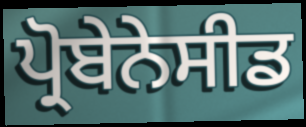
ਪ੍ਰੋਬੇਨੇਸੀਡ